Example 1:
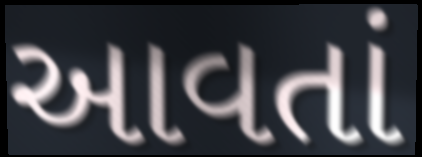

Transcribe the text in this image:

આવતાં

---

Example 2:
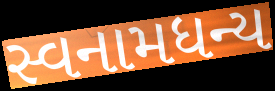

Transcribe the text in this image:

સ્વનામધન્ય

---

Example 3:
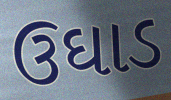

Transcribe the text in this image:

ઉઘાડ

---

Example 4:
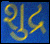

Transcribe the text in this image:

શુદ્ર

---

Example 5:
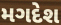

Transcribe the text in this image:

મગદેશ